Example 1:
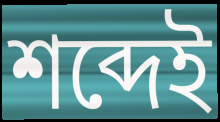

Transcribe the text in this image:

শব্দেই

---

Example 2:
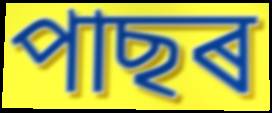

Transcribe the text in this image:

পাছৰ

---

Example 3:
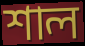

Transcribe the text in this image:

শাল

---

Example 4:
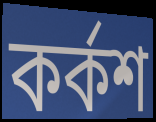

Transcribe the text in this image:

কৰ্কশ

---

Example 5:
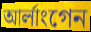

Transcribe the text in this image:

আৰ্লাংগেন